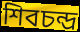
শিবচন্দ্র